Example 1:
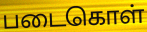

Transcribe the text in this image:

படைகொள்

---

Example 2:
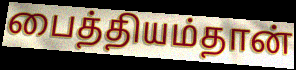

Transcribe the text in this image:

பைத்தியம்தான்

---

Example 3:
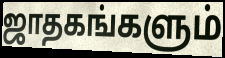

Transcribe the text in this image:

ஜாதகங்களும்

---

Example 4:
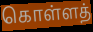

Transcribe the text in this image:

கொள்ளத்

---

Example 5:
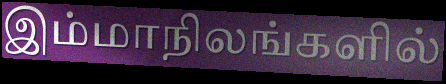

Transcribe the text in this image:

இம்மாநிலங்களில்